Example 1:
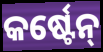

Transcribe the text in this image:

କର୍ଷ୍ଟେନ୍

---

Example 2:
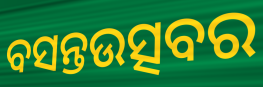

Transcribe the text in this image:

ବସନ୍ତଉତ୍ସବର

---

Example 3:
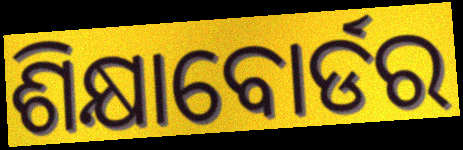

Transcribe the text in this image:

ଶିକ୍ଷାବୋର୍ଡର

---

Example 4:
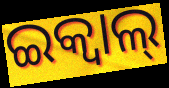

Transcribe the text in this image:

ଇକ୍ବାଲ୍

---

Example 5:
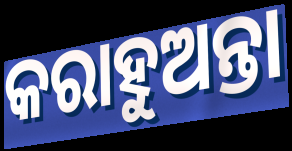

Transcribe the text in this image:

କରାହୁଅନ୍ତା